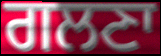
ਗਲਣਾ